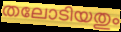
തലോടിയതും